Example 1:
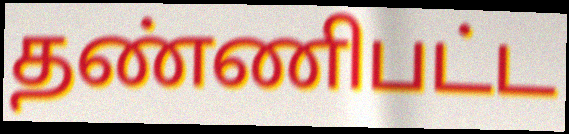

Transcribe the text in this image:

தண்ணிபட்ட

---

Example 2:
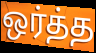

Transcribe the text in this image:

ஒர்த்த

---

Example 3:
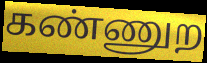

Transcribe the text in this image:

கண்ணுற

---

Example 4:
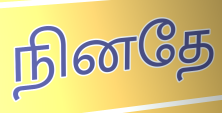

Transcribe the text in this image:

நினதே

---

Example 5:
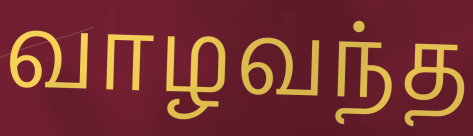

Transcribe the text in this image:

வாழவந்த